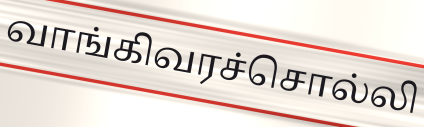
வாங்கிவரச்சொல்லி